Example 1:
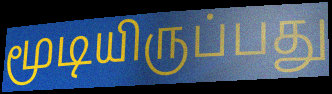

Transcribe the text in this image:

மூடியிருப்பது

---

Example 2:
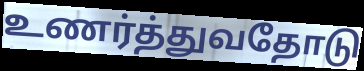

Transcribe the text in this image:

உணர்த்துவதோடு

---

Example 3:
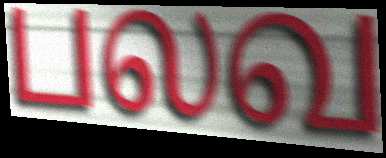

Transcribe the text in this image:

பலவ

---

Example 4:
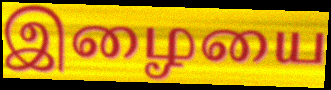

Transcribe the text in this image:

இழையை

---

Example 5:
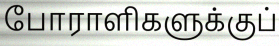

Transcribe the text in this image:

போராளிகளுக்குப்